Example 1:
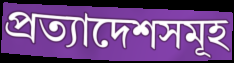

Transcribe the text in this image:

প্রত্যাদেশসমূহ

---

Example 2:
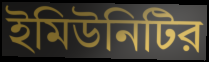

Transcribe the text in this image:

ইমিউনিটির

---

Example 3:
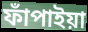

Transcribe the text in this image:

ফাঁপাইয়া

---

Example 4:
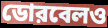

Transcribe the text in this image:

ডোরবেলও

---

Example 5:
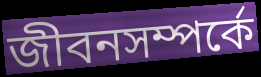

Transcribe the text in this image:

জীবনসম্পর্কে